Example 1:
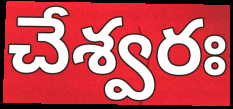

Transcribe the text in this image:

చేశ్వరః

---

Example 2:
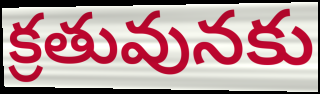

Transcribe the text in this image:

క్రతువునకు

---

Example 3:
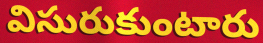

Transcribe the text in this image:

విసురుకుంటారు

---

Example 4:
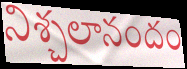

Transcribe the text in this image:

నిశ్చలానందం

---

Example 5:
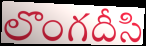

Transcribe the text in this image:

లొంగదీసి